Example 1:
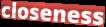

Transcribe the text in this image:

closeness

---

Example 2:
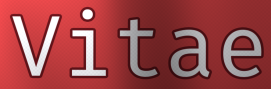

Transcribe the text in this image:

Vitae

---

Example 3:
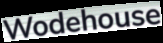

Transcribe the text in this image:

Wodehouse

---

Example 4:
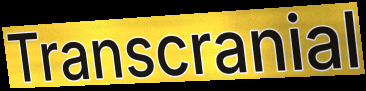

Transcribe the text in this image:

Transcranial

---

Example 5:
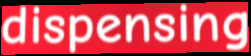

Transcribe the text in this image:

dispensing